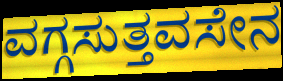
ವಗ್ಗಸುತ್ತವಸೇನ